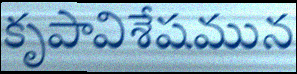
కృపావిశేషమున